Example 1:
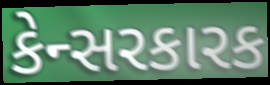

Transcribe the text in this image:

કેન્સરકારક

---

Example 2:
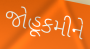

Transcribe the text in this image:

જોહૂકમીને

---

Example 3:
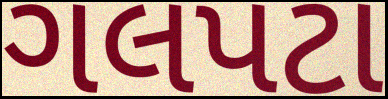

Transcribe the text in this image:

ગલપટા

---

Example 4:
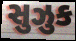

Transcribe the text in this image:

સુઝુક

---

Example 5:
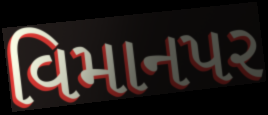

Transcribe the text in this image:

વિમાનપર